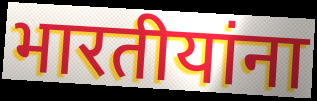
भारतीयांना